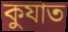
কুযাত